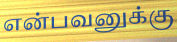
என்பவனுக்கு